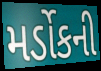
મર્ડોકની